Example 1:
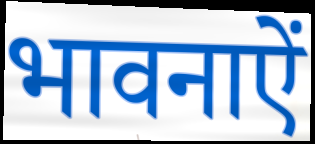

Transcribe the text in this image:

भावनाऐं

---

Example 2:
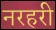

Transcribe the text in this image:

नरहरी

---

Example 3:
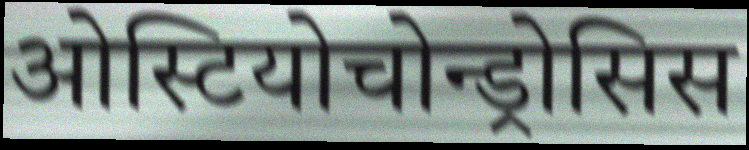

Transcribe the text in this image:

ओस्टियोचोन्ड्रोसिस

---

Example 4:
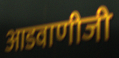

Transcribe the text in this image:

आडवाणीजी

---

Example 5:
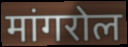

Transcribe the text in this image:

मांगरोल